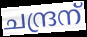
ചന്ദ്രന്